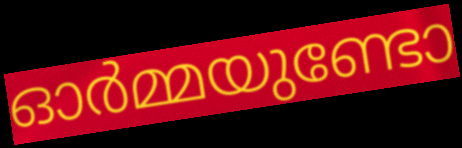
ഓർമ്മയുണ്ടോ